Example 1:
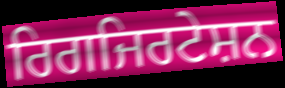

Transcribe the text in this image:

ਰਿਗਜਿਰਟੇਸ਼ਨ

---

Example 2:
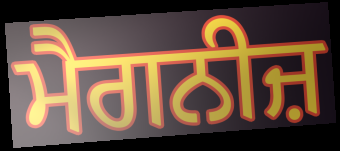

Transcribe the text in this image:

ਮੈਗਨੀਜ਼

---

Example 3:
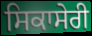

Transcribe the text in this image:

ਸਿਕਾਸੇਰੀ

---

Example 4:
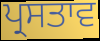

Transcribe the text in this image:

ਪ੍ਰਸਤਾਵ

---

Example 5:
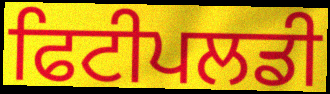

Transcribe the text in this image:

ਫਿਟੀਪਲਡੀ